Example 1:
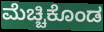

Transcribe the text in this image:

ಮೆಚ್ಚಿಕೊಂಡ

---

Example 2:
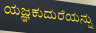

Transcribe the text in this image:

ಯಜ್ಞಕುದುರೆಯನ್ನು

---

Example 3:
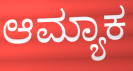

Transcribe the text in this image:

ಆಮ್ಯಾಕ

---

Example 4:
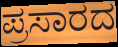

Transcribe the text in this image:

ಪ್ರಸಾರದ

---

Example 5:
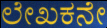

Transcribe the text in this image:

ಲೇಖಕನೇ